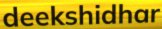
deekshidhar